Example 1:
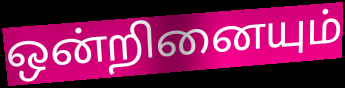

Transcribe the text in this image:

ஒன்றினையும்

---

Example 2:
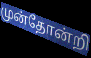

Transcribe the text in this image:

முன்தோன்றி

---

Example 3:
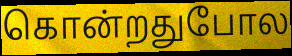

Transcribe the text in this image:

கொன்றதுபோல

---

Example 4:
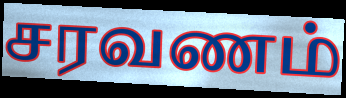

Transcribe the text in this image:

சரவணம்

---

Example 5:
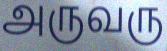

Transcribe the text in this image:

அருவரு